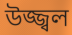
উজ্জ্বল